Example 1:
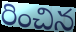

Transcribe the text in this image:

రించిన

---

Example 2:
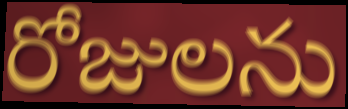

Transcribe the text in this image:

రోజులను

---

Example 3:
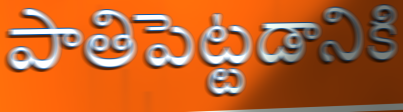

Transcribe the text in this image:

పాతిపెట్టడానికి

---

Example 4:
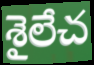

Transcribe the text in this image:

శైలేచ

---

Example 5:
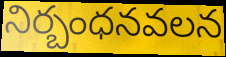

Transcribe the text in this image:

నిర్బంధనవలన